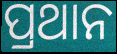
ପ୍ରଥାନ